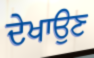
ਦੇਖਾਉਣ